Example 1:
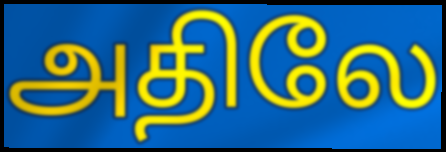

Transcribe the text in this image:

அதிலே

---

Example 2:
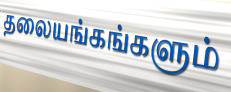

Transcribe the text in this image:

தலையங்கங்களும்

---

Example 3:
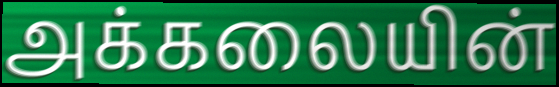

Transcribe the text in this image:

அக்கலையின்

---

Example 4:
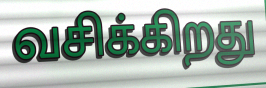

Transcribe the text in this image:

வசிக்கிறது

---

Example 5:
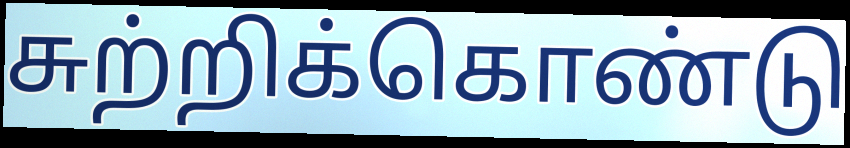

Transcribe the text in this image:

சுற்றிக்கொண்டு